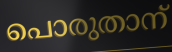
പൊരുതാന്